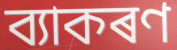
ব্যাকৰণ